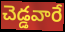
చెడ్డవారే